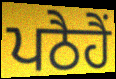
ਪਠੈਹੈਂ